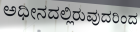
ಅಧೀನದಲ್ಲಿರುವುದರಿಂದ